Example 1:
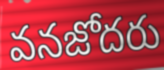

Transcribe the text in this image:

వనజోదరు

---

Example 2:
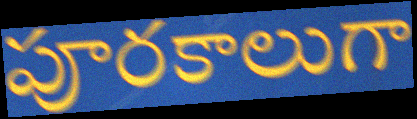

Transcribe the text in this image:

పూరకాలుగా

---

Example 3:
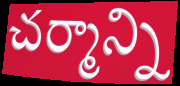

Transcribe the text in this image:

చర్మాన్ని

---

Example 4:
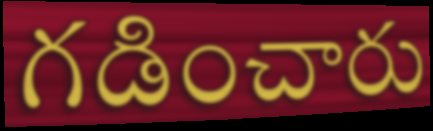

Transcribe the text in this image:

గడించారు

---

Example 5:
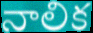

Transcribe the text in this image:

నాలిక